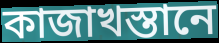
কাজাখস্তানে